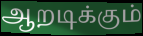
ஆறடிக்கும்